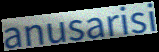
anusarisi